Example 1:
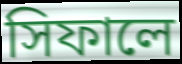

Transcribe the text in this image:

সিফালে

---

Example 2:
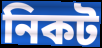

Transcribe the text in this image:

নিকট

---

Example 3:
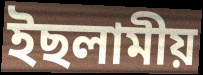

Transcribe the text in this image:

ইছলামীয়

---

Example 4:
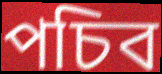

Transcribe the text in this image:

পচিব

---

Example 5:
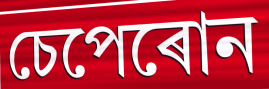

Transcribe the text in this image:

চেপেৰোন